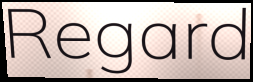
Regard